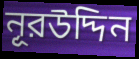
নূরউদ্দিন